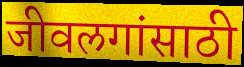
जीवलगांसाठी